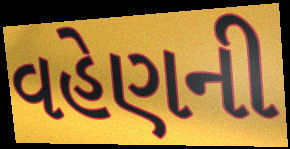
વહેણની